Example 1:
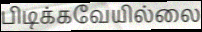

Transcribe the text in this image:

பிடிக்கவேயில்லை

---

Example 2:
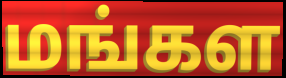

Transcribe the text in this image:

மங்கள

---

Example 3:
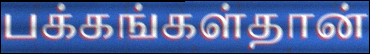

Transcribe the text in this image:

பக்கங்கள்தான்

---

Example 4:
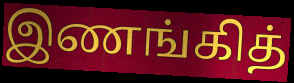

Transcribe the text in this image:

இணங்கித்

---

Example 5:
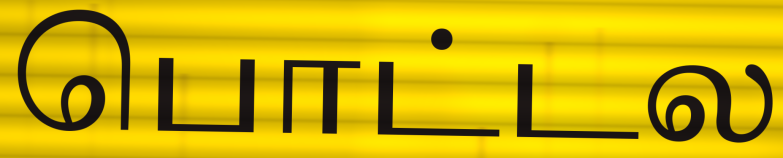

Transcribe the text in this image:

பொட்டல